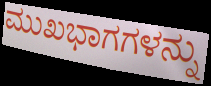
ಮುಖಭಾಗಗಳನ್ನು